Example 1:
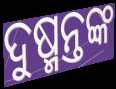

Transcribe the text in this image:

ଦୁଷ୍ମନ୍ତଙ୍କ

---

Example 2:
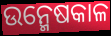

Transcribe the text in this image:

ଉନ୍ମେଷକାଳ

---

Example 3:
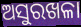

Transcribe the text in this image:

ଅସୁରଖଳା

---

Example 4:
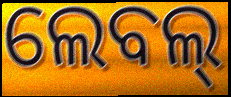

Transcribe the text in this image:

ଲେବଲ୍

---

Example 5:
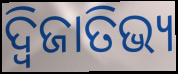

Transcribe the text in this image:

ଦ୍ବିଜାତିଭ୍ୟ